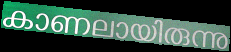
കാണലായിരുന്നു